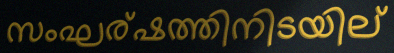
സംഘര്ഷത്തിനിടയില്